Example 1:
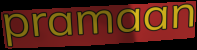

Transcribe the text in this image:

pramaan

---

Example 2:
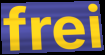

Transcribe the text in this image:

frei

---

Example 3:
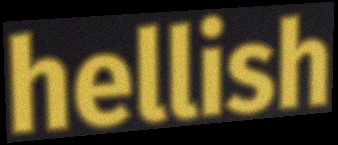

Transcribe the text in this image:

hellish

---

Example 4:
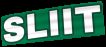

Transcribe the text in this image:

SLIIT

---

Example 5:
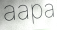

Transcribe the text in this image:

aapa